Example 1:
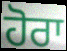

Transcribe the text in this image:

ਹੋਰਾ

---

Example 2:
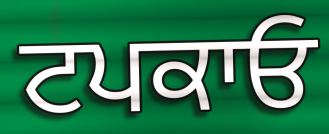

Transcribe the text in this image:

ਟਪਕਾਓ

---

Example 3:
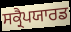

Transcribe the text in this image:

ਸਕ੍ਰੈਪਯਾਰਡ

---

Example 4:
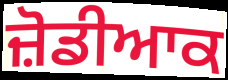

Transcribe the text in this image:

ਜ਼ੋਡੀਆਕ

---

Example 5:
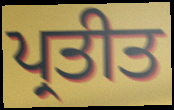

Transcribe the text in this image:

ਪ੍ਰਤੀਤ